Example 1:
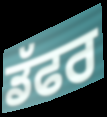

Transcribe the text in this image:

ਡੱਫਰ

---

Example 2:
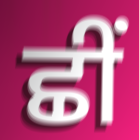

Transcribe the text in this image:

ਛੀਂ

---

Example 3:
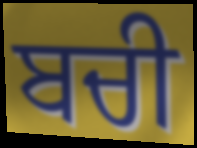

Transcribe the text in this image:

ਬਚੀ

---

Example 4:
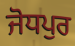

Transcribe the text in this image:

ਜੋਧਪੁਰ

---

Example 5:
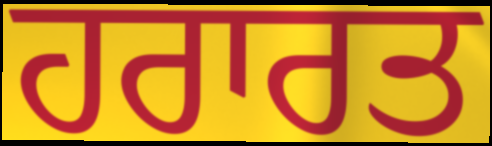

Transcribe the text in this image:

ਹਰਾਰਤ